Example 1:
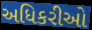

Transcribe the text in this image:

અધિકરીઓ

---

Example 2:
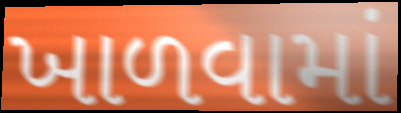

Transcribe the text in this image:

ખાળવામાં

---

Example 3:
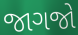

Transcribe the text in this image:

જાગજો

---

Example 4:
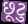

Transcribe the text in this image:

છૂટુ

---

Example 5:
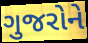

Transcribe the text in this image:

ગુજરોને